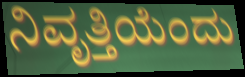
ನಿವೃತ್ತಿಯೆಂದು